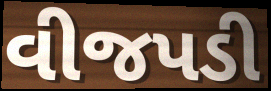
વીજપડી